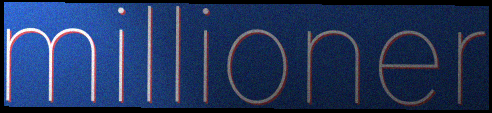
millioner